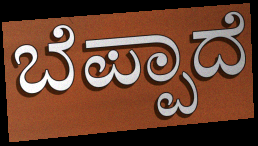
ಬೆಪ್ಪಾದೆ